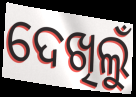
ଦେଖିଲୁଁ